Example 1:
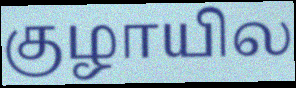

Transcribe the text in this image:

குழாயில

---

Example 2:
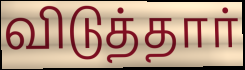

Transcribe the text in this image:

விடுத்தார்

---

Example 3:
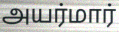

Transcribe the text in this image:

அயர்மார்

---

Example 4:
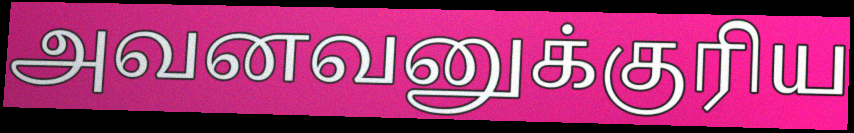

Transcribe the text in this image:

அவனவனுக்குரிய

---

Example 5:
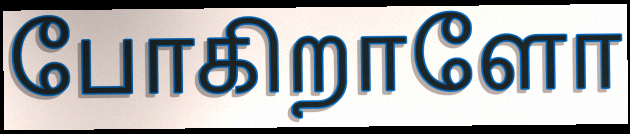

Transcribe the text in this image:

போகிறாளோ